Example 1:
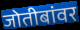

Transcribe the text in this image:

जोतीबांवर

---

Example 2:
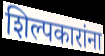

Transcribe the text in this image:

शिल्पकारांना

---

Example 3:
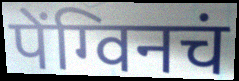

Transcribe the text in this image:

पेंग्विनचं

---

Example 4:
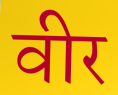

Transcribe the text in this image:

वीर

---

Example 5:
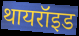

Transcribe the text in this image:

थायरॉइड